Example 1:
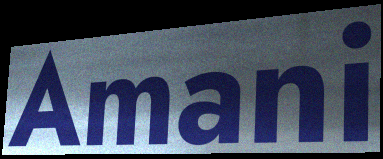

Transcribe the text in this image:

Amani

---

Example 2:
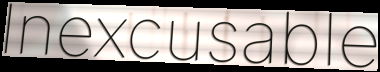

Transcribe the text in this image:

Inexcusable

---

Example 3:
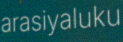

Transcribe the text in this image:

arasiyaluku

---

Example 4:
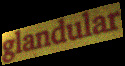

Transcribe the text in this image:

glandular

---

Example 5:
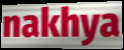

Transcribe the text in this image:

nakhya